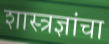
शास्त्रज्ञांचा